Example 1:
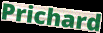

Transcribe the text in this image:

Prichard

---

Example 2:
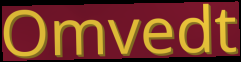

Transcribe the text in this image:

Omvedt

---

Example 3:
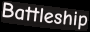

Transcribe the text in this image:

Battleship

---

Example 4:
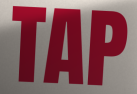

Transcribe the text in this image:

TAP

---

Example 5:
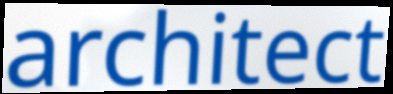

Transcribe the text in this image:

architect